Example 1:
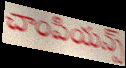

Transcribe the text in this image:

చాంపియన్స్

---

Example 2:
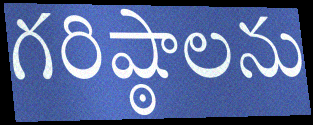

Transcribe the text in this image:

గరిష్ఠాలను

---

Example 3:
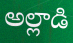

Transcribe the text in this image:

అల్లాడి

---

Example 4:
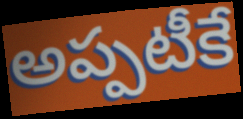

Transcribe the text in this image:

అప్పటీకే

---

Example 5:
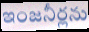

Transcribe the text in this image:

ఇంజనీర్లను